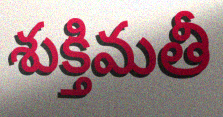
శుక్తిమతీ